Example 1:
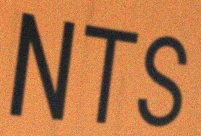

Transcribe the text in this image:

NTS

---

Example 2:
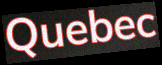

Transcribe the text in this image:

Quebec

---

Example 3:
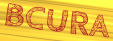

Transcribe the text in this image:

BCURA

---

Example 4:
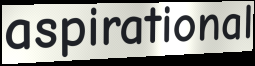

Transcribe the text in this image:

aspirational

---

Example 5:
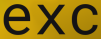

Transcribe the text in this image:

exc